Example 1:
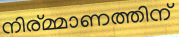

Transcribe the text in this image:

നിര്മ്മാണത്തിന്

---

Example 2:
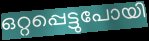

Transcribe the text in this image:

ഒറ്റപ്പെട്ടുപോയി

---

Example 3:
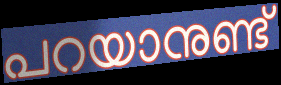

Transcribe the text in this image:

പറയാനുണ്ട്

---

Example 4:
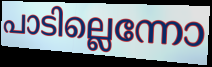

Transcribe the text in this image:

പാടില്ലെന്നോ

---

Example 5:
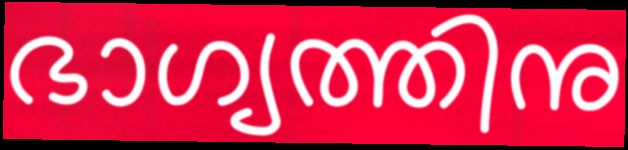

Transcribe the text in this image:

ഭാഗ്യത്തിനു